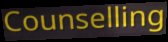
Counselling